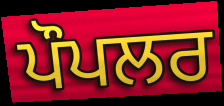
ਪੌਪਲਰ